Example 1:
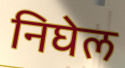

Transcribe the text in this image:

निघेल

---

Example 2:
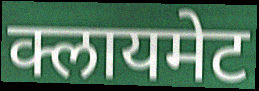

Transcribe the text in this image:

क्लायमेट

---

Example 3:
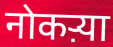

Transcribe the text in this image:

नोकऱ्‍या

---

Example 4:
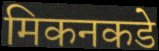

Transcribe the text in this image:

मिकनकडे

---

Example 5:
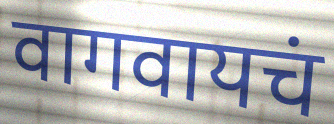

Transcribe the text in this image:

वागवायचं